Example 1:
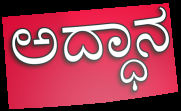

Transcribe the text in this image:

ಅದ್ಧಾನ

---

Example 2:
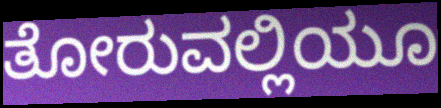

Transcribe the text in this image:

ತೋರುವಲ್ಲಿಯೂ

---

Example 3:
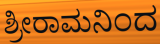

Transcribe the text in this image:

ಶ್ರೀರಾಮನಿಂದ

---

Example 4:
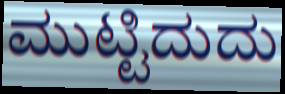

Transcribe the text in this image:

ಮುಟ್ಟಿದುದು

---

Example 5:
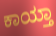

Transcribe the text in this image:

ಕಾಯ್ತಾ